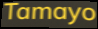
Tamayo